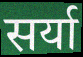
सर्या